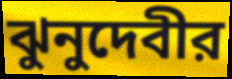
ঝুনুদেবীর